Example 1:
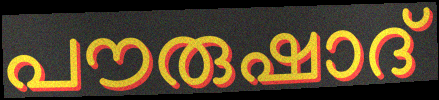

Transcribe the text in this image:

പൗരുഷാദ്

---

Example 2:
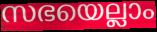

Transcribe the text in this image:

സഭയെല്ലാം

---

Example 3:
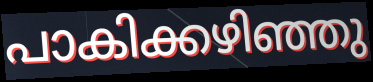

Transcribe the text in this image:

പാകിക്കഴിഞ്ഞു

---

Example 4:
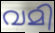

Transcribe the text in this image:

വമി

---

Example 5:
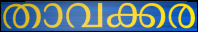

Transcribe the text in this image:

താവക്കര